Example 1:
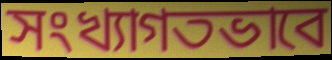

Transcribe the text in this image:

সংখ্যাগতভাবে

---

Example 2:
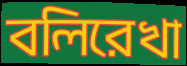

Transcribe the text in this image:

বলিরেখা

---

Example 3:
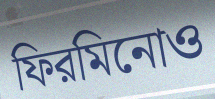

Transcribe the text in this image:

ফিরমিনোও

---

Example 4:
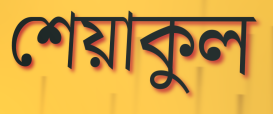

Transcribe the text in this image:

শেয়াকুল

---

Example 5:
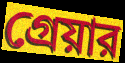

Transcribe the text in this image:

গ্রেয়ার